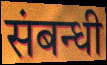
संबन्‍धी